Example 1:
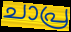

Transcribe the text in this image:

ചാപ്ര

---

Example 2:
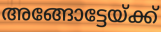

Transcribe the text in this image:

അങ്ങോട്ടേയ്ക്ക്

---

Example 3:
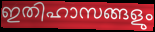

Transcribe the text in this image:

ഇതിഹാസങ്ങളും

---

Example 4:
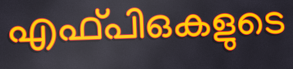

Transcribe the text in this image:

എഫ്പിഒകളുടെ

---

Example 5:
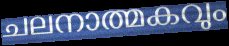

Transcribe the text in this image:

ചലനാത്മകവും